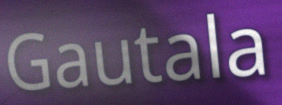
Gautala